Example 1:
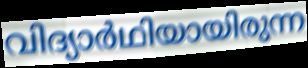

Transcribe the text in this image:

വിദ്യാർഥിയായിരുന്ന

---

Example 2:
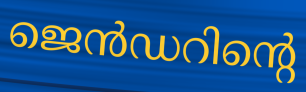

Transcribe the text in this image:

ജെൻഡറിന്റെ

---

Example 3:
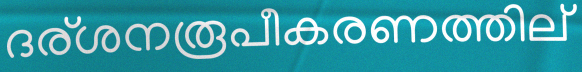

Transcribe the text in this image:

ദര്ശനരൂപീകരണത്തില്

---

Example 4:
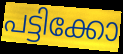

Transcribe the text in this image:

പട്ടിക്കോ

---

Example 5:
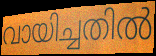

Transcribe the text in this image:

വായിച്ചതിൽ